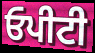
ਓਪੀਟੀ